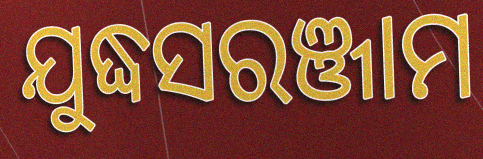
ଯୁଦ୍ଧସରଞ୍ଜାମ